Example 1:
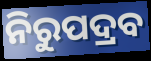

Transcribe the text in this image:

ନିରୁପଦ୍ରବ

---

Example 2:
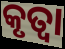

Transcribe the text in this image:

କୃତ୍ଵା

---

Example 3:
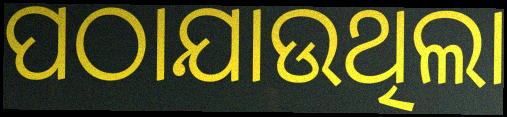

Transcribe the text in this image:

ପଠାଯାଉଥିଲା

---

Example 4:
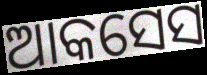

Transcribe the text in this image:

ଆକସେସ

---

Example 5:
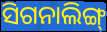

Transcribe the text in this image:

ସିଗନାଲିଙ୍ଗ୍